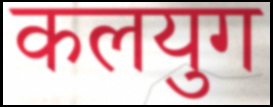
कलयुग